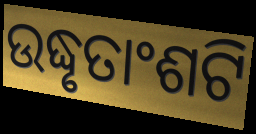
ଉଦ୍ଧୃତାଂଶଟି